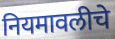
नियमावलीचे